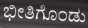
ಭೀತಿಗೊಂಡು